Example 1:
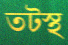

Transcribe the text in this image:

তটস্থ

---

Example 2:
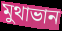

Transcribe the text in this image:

মুথাভান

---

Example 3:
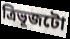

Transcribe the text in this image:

ত্ৰিভূজটো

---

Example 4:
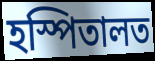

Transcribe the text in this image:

হস্পিতালত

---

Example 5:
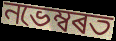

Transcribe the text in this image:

নভেম্বৰত